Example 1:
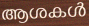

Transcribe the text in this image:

ആശകൾ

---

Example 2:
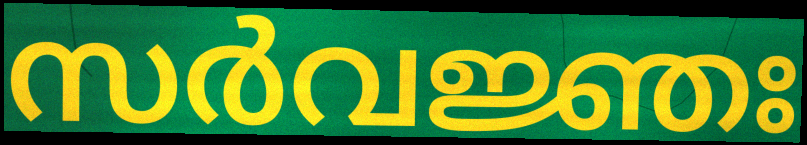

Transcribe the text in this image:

സർവജ്ഞഃ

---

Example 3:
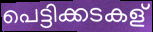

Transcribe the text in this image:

പെട്ടിക്കടകള്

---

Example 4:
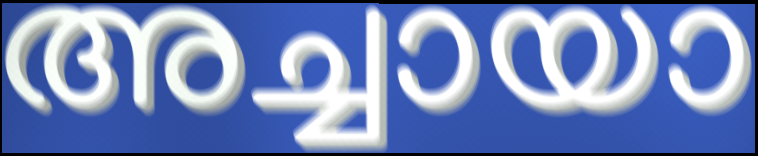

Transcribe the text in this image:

അച്ചായാ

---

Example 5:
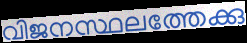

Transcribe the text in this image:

വിജനസ്ഥലത്തേക്കു